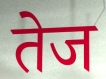
तेज